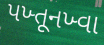
પખ્તૂનખ્વા